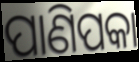
ପାଣିପକା